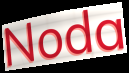
Noda